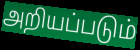
அறியப்படும்